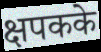
क्षपकके